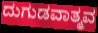
ದುಗುಡವಾತ್ಮವ